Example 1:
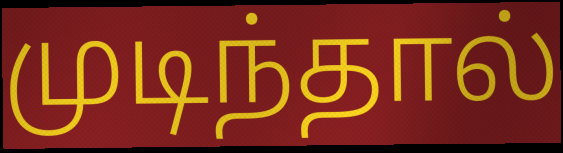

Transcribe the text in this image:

முடிந்தால்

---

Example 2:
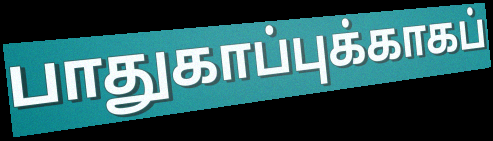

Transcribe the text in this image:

பாதுகாப்புக்காகப்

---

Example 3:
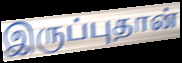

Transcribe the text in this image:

இருப்புதான்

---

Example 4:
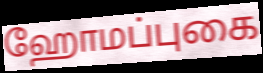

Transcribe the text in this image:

ஹோமப்புகை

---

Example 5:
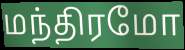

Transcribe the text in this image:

மந்திரமோ